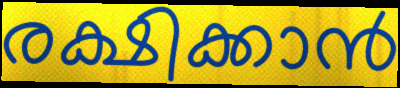
രക്ഷിക്കാൻ